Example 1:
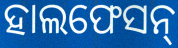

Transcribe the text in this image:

ହାଲଫେସନ୍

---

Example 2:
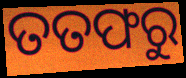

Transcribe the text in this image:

ତତଫରୁ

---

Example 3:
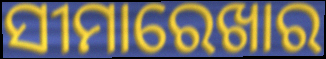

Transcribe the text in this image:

ସୀମାରେଖାର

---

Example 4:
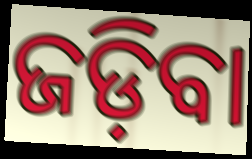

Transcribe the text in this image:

ଜଡ଼ିବା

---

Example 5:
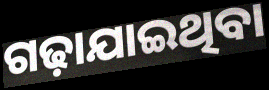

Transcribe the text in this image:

ଗଢ଼ାଯାଇଥିବା